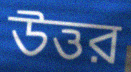
উত্তর